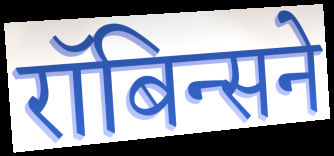
रॉबिन्सने